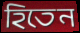
হিতেন